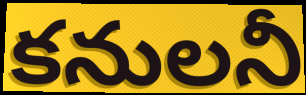
కనులనీ